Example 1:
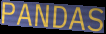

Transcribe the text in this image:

PANDAS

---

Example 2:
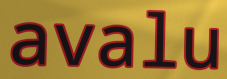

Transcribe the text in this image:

avalu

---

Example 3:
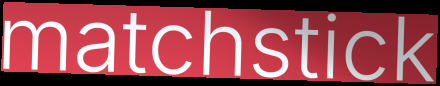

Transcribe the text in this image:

matchstick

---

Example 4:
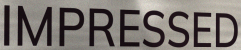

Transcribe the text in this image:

IMPRESSED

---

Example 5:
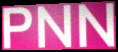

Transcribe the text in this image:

PNN